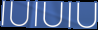
IUIUIU